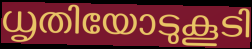
ധൃതിയോടുകൂടി